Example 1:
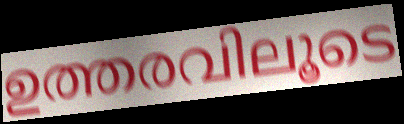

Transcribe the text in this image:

ഉത്തരവിലൂടെ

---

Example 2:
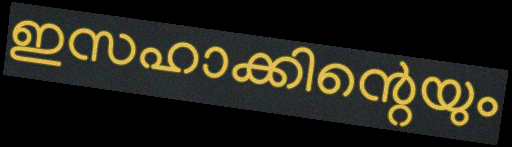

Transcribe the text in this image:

ഇസഹാക്കിന്റെയും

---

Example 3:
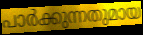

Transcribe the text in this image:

പാർക്കുന്നതുമായ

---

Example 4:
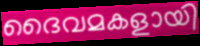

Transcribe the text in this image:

ദൈവമകളായി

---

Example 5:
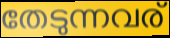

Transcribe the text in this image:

തേടുന്നവര്